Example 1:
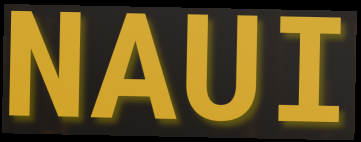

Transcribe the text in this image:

NAUI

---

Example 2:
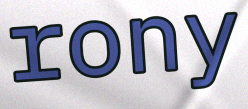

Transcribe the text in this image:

rony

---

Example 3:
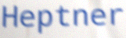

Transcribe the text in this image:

Heptner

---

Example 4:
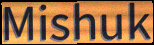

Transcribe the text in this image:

Mishuk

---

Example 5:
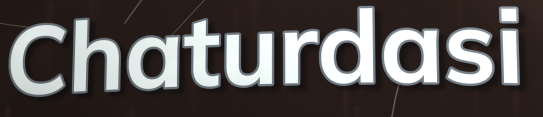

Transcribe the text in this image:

Chaturdasi